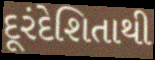
દૂરંદેશિતાથી